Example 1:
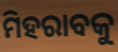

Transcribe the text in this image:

ମିହରାବକୁ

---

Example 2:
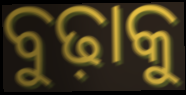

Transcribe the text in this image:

ବୁଢ଼ାକୁ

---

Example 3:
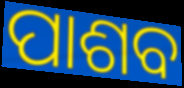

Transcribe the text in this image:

ପାଶବ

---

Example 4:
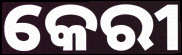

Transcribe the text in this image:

କେରୀ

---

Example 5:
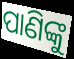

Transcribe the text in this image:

ପାଣିଙ୍କୁ